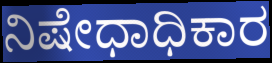
ನಿಷೇಧಾಧಿಕಾರ